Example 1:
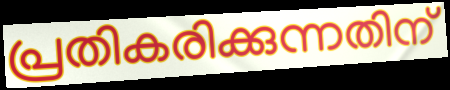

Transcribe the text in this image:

പ്രതികരിക്കുന്നതിന്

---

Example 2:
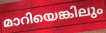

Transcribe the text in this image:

മാറിയെങ്കിലും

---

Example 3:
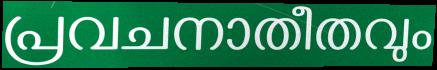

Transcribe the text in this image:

പ്രവചനാതീതവും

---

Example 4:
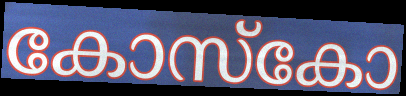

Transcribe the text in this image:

കോസ്കോ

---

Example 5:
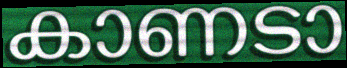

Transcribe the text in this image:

കാണടാ